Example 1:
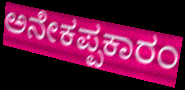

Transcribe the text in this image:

ಅನೇಕಪ್ಪಕಾರಂ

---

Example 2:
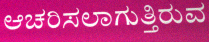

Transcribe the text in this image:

ಆಚರಿಸಲಾಗುತ್ತಿರುವ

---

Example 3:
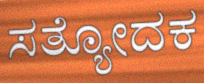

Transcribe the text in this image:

ಸತ್ಯೋದಕ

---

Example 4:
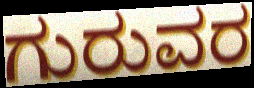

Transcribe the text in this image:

ಗುರುವರ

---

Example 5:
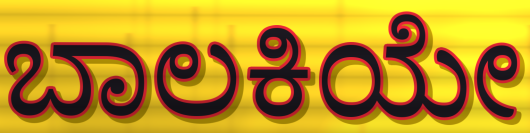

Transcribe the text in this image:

ಬಾಲಕಿಯೇ